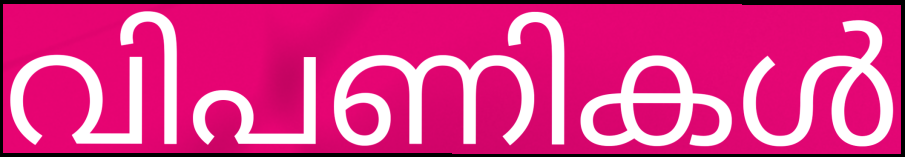
വിപണികൾ